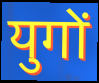
युगों